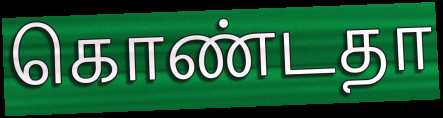
கொண்டதா